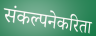
संकल्पनेकरिता